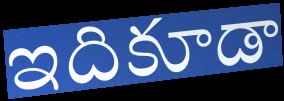
ఇదికూడా